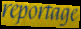
reportage